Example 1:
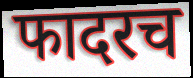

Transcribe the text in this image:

फादरच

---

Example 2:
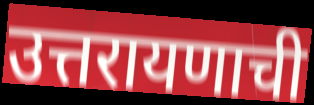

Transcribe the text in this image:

उत्तरायणाची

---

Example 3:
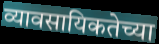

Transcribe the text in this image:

व्यावसायिकतेच्या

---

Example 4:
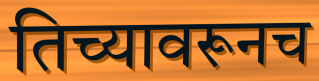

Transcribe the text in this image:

तिच्यावरूनच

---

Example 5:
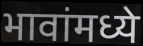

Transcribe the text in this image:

भावांमध्ये